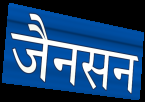
जैनसन